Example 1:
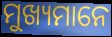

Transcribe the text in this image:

ମୁଖ୍ୟମାନେ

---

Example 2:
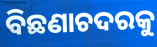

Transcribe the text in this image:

ବିଛଣାଚଦରକୁ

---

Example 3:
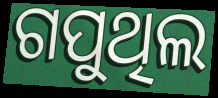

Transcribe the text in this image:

ଗପୁଥିଲ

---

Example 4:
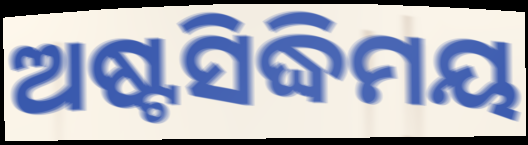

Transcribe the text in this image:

ଅଷ୍ଟସିଦ୍ଧିମୟ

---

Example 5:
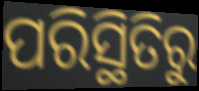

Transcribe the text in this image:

ପରିସ୍ଥିତିରୁ